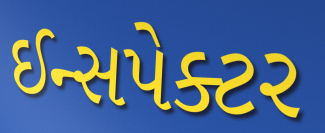
ઈન્સપેક્ટર